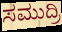
ಸಮುದ್ರಿ